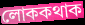
লোককথাক